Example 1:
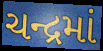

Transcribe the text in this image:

ચન્દ્રમાં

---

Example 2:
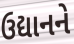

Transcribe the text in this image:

ઉદ્યાનને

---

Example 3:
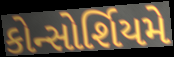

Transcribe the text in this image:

કોન્સોર્શિયમે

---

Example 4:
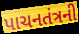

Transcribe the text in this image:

પાચનતંત્રની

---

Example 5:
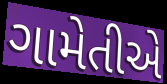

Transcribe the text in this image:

ગામેતીએ